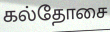
கல்தோசை